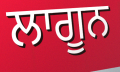
ਲਾਗੂਨ